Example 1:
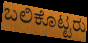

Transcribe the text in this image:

ಬಲಿಕೊಟ್ಟರು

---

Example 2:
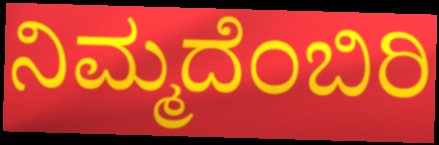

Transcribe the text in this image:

ನಿಮ್ಮದೆಂಬಿರಿ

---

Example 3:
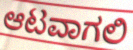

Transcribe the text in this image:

ಆಟವಾಗಲಿ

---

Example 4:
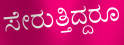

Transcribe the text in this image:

ಸೇರುತ್ತಿದ್ದರೂ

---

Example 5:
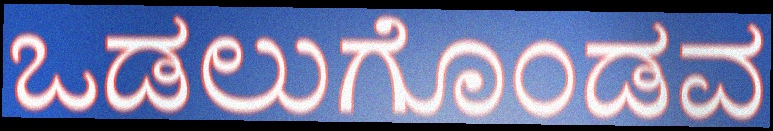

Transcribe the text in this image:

ಒಡಲುಗೊಂಡವ